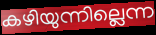
കഴിയുന്നില്ലെന്ന